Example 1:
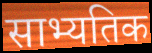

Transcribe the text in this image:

साभ्यतिक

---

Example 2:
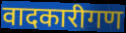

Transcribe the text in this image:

वादकारीगण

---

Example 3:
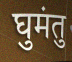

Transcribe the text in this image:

घुमंतु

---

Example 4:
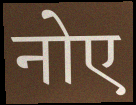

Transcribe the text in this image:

नोए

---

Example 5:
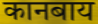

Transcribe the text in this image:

कानबाय